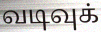
வடிவுக்